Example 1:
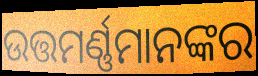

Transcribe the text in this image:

ଉତ୍ତମର୍ଣ୍ଣମାନଙ୍କର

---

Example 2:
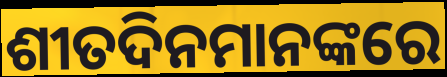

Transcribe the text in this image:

ଶୀତଦିନମାନଙ୍କରେ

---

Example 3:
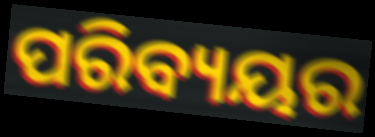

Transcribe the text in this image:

ପରିବ୍ୟୟର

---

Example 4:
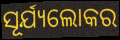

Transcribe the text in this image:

ସୂର୍ଯ୍ୟଲୋକର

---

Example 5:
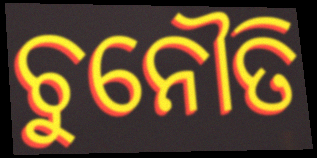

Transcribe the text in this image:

ଚୁନୌତି